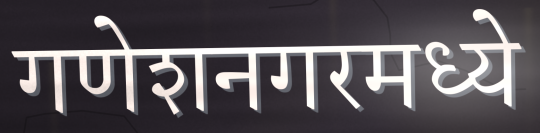
गणेशनगरमध्ये